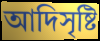
আদিসৃষ্টি